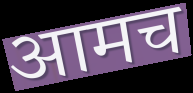
आमच